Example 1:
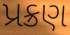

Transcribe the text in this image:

પ્રક્રણ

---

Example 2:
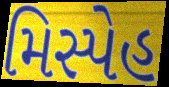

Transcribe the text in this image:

મિસ્પેહ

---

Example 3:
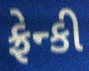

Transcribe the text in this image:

ફ્રેન્કી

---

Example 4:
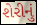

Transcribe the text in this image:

શેરીનું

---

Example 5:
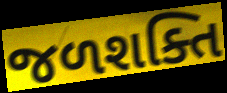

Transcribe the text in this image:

જળશક્તિ